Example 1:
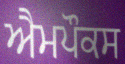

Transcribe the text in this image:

ਐਮਪੌਕਸ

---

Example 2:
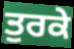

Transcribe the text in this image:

ਤੁਰਕੇ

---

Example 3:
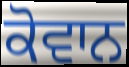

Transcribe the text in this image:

ਕੋਵਾਨ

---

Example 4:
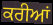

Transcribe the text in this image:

ਕਰੀਆਂ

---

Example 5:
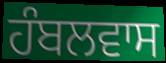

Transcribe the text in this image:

ਹੰਬਲਵਾਸ